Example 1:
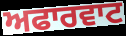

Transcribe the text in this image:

ਅਫਾਰਵਾਟ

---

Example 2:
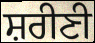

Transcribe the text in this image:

ਸ਼ਰੀਣੀ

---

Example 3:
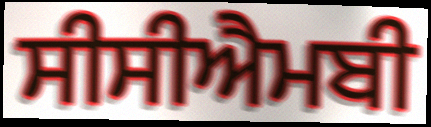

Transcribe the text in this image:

ਸੀਸੀਐਮਬੀ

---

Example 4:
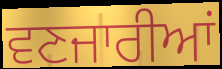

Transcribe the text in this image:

ਵਣਜਾਰੀਆਂ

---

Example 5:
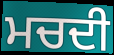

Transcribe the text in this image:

ਮਚਦੀ